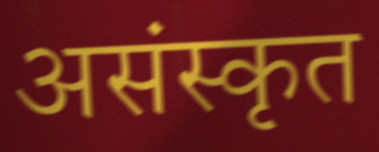
असंस्कृत